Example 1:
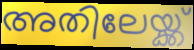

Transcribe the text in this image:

അതിലേയ്ക്ക്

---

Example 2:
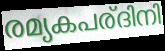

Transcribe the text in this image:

രമ്യകപര്ദിനി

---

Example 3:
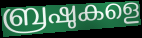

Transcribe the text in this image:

ബ്രഷുകളെ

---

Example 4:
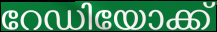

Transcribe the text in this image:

റേഡിയോക്ക്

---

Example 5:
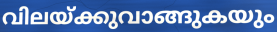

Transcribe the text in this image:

വിലയ്ക്കുവാങ്ങുകയും